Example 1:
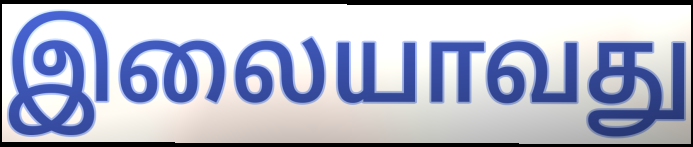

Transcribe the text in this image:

இலையாவது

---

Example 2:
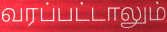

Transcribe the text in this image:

வரப்பட்டாலும்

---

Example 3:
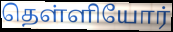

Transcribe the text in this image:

தெள்ளியோர்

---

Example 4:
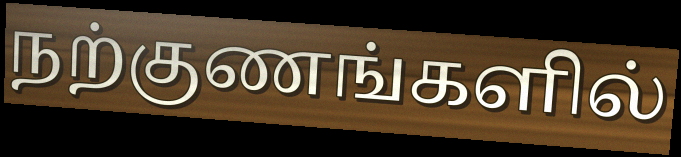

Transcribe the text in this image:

நற்குணங்களில்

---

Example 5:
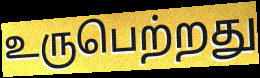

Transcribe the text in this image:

உருபெற்றது